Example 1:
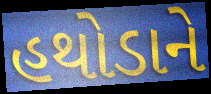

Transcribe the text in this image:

હથોડાને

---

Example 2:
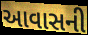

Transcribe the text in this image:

આવાસની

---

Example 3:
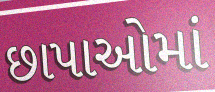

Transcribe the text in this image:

છાપાઓમાં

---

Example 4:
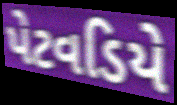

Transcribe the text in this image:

પેટવડિયે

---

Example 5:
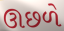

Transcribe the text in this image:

ઊછળે